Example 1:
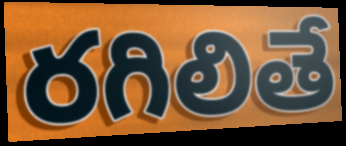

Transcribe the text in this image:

రగిలితే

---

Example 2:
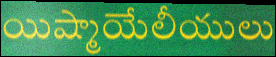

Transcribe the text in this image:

యిష్మాయేలీయులు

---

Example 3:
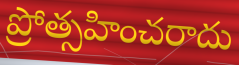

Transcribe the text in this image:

ప్రోత్సహించరాదు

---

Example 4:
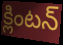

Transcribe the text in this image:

క్లింటన్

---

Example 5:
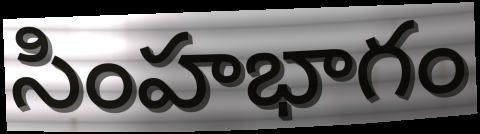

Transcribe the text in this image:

సింహభాగం